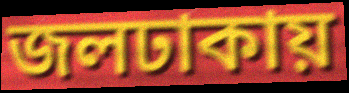
জলঢাকায়